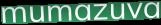
mumazuva